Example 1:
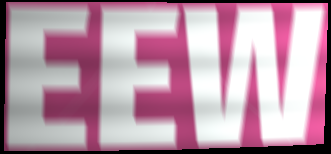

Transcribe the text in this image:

EEW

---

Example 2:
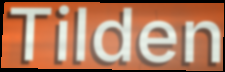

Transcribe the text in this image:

Tilden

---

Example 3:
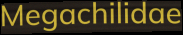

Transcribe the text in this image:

Megachilidae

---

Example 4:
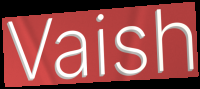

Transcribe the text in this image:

Vaish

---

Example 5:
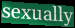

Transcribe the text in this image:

sexually